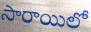
సారాయిలో